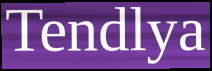
Tendlya